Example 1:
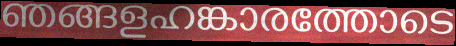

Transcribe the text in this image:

ഞങ്ങളഹങ്കാരത്തോടെ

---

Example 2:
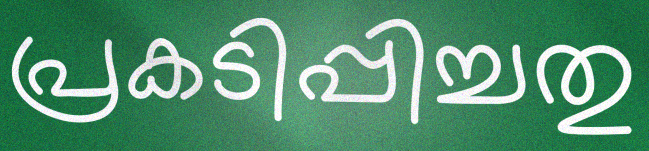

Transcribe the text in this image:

പ്രകടിപ്പിച്ചതു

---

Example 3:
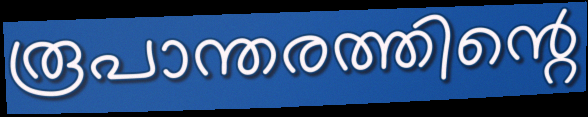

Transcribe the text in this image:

രൂപാന്തരത്തിന്റെ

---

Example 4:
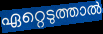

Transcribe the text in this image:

ഏറ്റെടുത്താൽ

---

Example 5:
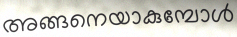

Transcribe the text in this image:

അങ്ങനെയാകുമ്പോൾ